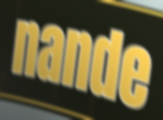
nande